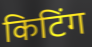
किटिंग